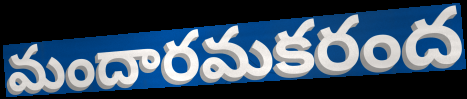
మందారమకరంద